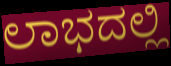
ಲಾಭದಲ್ಲಿ